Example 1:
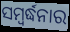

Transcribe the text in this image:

ସମ୍ବର୍ଦ୍ଧନାର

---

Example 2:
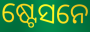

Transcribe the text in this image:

ଷ୍ଟେସନେ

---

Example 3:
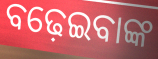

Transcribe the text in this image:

ବଢ଼େଇବାଙ୍କ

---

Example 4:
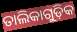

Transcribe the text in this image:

ତାଲିକାଗୁଡ଼ିକ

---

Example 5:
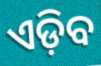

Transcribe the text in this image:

ଏଡ଼ିବ